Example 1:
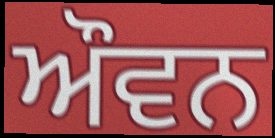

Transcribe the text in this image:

ਔਵਨ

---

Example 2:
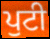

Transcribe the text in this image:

ਪੁਟੀ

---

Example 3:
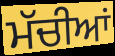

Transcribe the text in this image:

ਮੱਚੀਆਂ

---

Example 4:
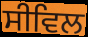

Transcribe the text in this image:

ਸੀਵਿਲ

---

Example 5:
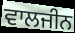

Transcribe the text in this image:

ਵਾਲਜੀਨ